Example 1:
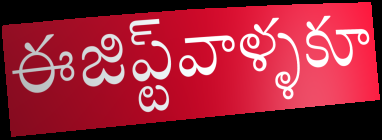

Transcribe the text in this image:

ఈజిప్ట్‌వాళ్ళకూ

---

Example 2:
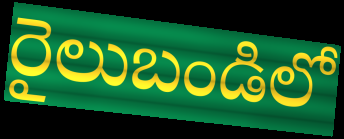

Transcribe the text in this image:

రైలుబండిలో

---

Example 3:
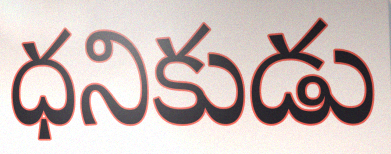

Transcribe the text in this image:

ధనికుడు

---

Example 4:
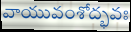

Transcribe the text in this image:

వాయువంశోద్భవః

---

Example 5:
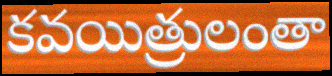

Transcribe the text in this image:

కవయిత్రులంతా